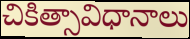
చికిత్సావిధానాలు